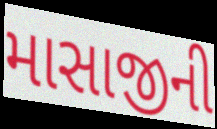
માસાજીની